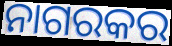
ନାଗରକର